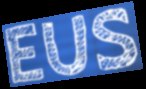
EUS